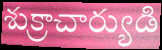
శుక్రాచార్యుడి